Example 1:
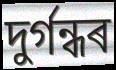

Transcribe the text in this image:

দুৰ্গন্ধৰ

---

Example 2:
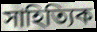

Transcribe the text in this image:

সাহিত্য়িক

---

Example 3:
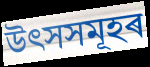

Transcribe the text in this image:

উৎসসমূহৰ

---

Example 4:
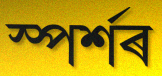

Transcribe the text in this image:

স্পৰ্শৰ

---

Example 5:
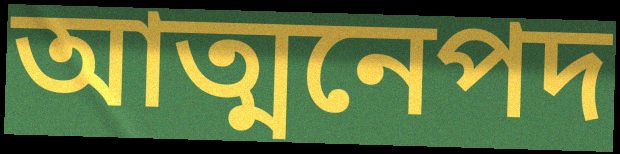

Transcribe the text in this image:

আত্মনেপদ